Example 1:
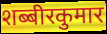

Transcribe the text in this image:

शब्बीरकुमार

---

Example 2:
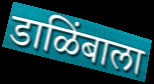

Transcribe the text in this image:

डाळिंबाला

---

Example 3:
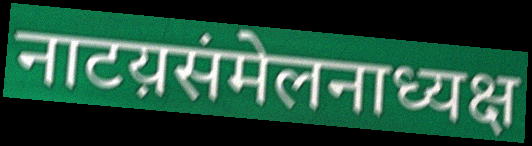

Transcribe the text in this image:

नाटय़संमेलनाध्यक्ष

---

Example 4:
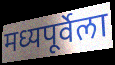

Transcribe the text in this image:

मध्यपूर्वेला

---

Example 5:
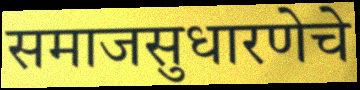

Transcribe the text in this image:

समाजसुधारणेचे